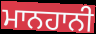
ਮਾਨਹਾਨੀ